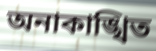
অনাকাঙ্খিত